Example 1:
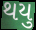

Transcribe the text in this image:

થયુ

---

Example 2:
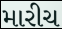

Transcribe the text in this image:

મારીચ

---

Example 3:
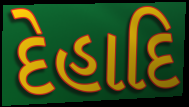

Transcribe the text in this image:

દેહાદિ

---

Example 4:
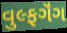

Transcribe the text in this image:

વુલ્ફગૅંગ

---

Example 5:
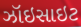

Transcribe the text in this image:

ઝૉઇસાઇટ